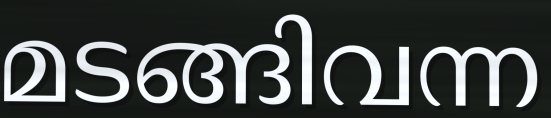
മടങ്ങിവന്ന